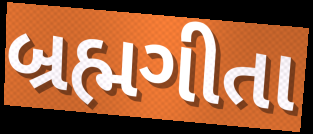
બ્રહ્મગીતા